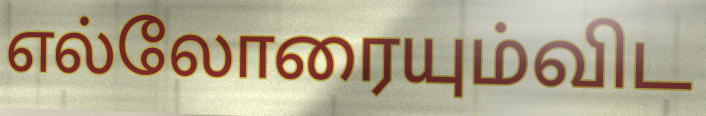
எல்லோரையும்விட